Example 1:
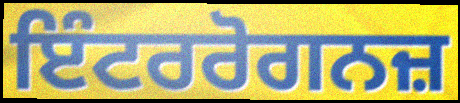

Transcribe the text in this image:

ਇੰਟਰਰੋਗਨਜ਼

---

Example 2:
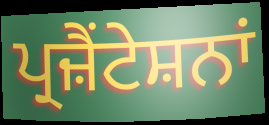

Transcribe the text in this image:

ਪ੍ਰਜ਼ੈਂਟੇਸ਼ਨਾਂ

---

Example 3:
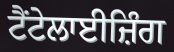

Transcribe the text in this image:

ਟੈਂਟੇਲਾਈਜ਼ਿੰਗ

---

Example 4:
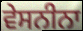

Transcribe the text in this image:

ਵੇਸਨੀਨਾ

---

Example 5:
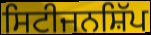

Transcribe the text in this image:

ਸਿਟੀਜਨਸ਼ਿੱਪ